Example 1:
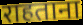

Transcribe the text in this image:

राहताना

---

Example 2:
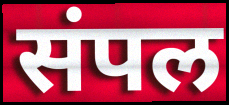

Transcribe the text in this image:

संपल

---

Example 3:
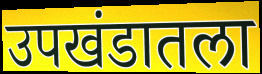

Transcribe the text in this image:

उपखंडातला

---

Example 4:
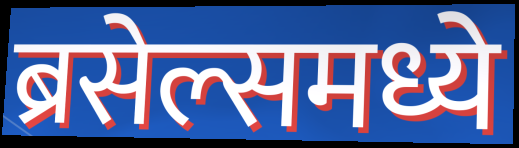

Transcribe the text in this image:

ब्रसेल्समध्ये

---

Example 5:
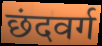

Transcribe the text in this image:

छंदवर्ग